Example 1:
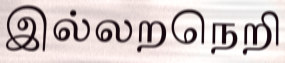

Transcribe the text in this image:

இல்லறநெறி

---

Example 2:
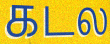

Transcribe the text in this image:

கடல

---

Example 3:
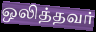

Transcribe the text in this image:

ஒலித்தவர்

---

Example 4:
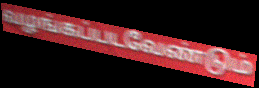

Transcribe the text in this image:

வழங்கப்படவேண்டும்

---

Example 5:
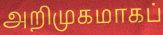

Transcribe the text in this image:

அறிமுகமாகப்